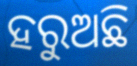
ହରୁଅଛି